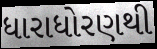
ધારાધોરણથી